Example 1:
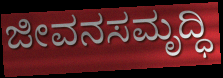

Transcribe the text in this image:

ಜೀವನಸಮೃದ್ಧಿ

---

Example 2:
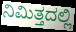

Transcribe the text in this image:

ನಿಮಿತ್ತದಲ್ಲಿ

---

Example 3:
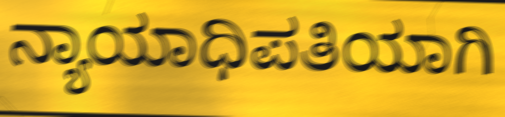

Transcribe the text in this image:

ನ್ಯಾಯಾಧಿಪತಿಯಾಗಿ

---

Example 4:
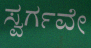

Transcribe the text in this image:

ಸ್ವರ್ಗವೇ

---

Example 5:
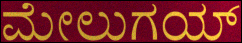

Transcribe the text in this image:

ಮೇಲುಗಯ್